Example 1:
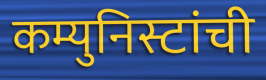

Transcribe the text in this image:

कम्युनिस्टांची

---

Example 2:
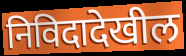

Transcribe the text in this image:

निविदादेखील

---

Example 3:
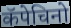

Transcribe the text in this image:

कॅपेचिनो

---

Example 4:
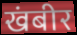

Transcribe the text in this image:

खंबीर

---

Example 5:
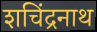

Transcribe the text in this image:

शचिंद्रनाथ